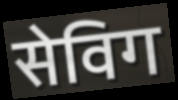
सेविग